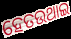
ହେତଉଥାଇ